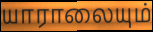
யாராலையும்